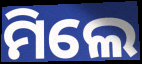
ମିଲେ